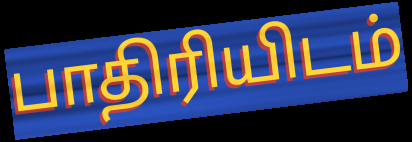
பாதிரியிடம்